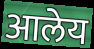
आलेय